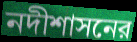
নদীশাসনের